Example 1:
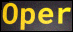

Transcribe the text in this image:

Oper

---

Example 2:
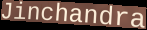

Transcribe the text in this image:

Jinchandra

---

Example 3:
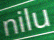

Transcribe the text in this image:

nilu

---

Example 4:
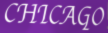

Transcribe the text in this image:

CHICAGO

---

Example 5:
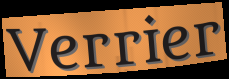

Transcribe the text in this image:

Verrier